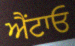
ਐਂਟਾਓ